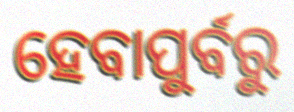
ହେବାପୁର୍ବରୁ